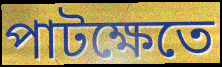
পাটক্ষেতে